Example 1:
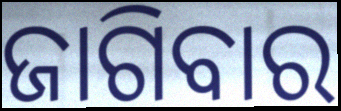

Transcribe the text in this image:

ଜାଗିବାର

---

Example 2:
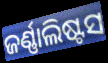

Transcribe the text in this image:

ଜର୍ଣ୍ଣାଲିଷ୍ଟସ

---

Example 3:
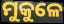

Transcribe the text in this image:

ମୁକୁଳେ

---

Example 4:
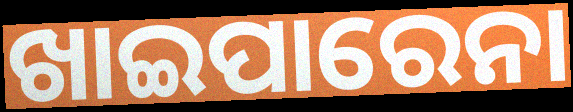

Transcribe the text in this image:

ଖାଇପାରେନା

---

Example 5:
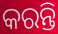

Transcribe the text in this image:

କରନ୍ତି